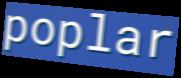
poplar